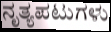
ನೃತ್ಯಪಟುಗಳು